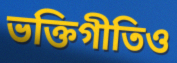
ভক্তিগীতিও